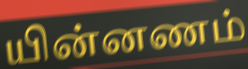
யின்னணம்